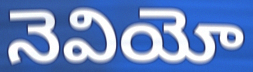
నెవియో